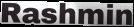
Rashmin